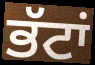
ਭੱਟਾਂ